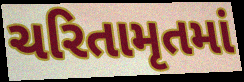
ચરિતામૃતમાં